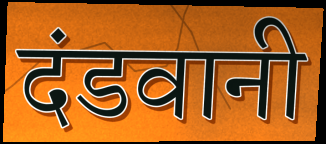
दंडवानी